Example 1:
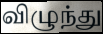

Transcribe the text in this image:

விழுந்து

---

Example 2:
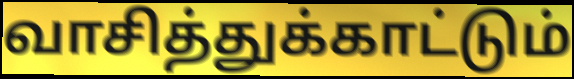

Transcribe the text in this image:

வாசித்துக்காட்டும்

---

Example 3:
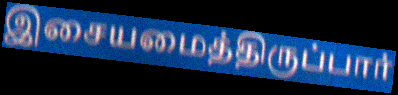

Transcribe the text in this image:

இசையமைத்திருப்பார்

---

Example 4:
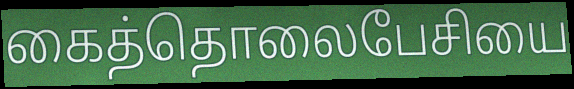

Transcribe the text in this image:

கைத்தொலைபேசியை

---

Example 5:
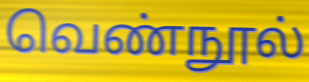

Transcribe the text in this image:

வெண்நூல்